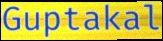
Guptakal